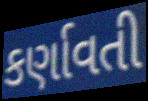
કર્ણાવતી